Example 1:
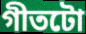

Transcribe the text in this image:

গীতটো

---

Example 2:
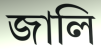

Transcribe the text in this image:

জালি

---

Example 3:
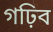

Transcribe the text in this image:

গঢ়িব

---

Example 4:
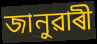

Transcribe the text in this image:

জানুৱাৰী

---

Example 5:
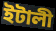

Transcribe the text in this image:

ইটালী